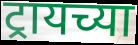
ट्रायच्या